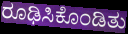
ರೂಢಿಸಿಕೊಂಡಿತು